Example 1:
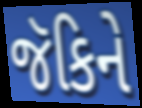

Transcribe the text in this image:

જૅકિને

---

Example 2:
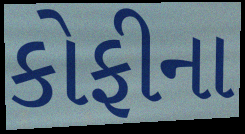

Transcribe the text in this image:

કોફીના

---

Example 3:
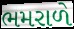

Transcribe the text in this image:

ભમરાળે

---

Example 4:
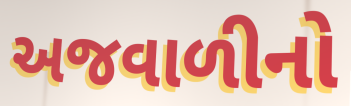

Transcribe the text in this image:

અજવાળીનો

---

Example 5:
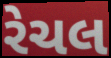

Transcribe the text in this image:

રેચલ